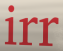
irr